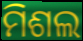
ମିଶଲ